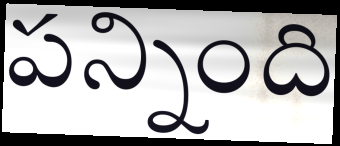
పన్నింది